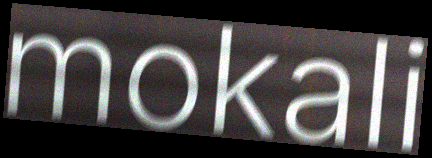
mokali